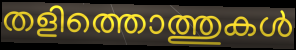
തളിത്തൊത്തുകൾ